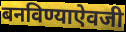
बनविण्याऐवजी